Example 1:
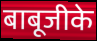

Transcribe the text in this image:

बाबूजीके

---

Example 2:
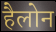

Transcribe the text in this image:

हैलोन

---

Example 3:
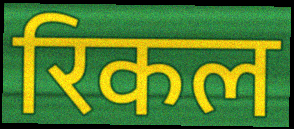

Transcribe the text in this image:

रिकल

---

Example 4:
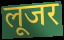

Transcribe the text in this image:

लूजर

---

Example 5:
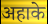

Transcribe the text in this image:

अहाके